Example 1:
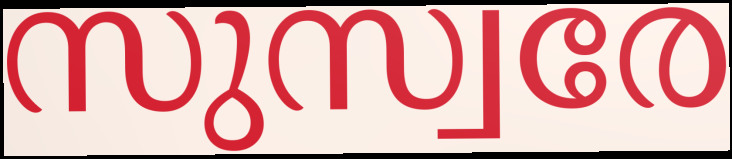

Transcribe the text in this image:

സുസ്വരേ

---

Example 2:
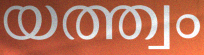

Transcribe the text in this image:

യത്ത്വം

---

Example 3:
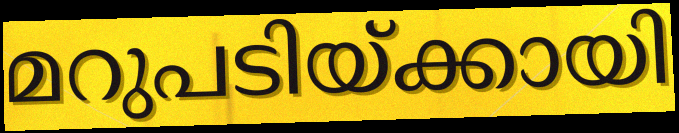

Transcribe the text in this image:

മറുപടിയ്ക്കായി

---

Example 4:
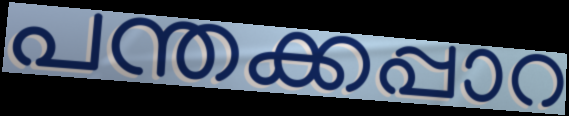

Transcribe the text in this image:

പന്തക്കപ്പാറ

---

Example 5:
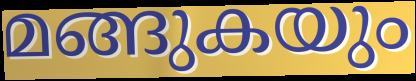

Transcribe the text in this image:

മങ്ങുകയും